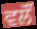
ਵਲੌਂ